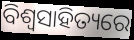
ବିଶ୍ବସାହିତ୍ୟରେ